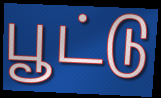
பூட்டு